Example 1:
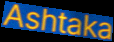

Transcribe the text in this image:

Ashtaka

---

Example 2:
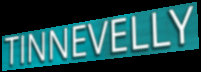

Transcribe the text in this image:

TINNEVELLY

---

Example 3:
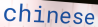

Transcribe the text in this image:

chinese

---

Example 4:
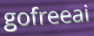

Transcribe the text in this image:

gofreeai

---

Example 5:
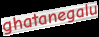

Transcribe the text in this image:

ghatanegalu